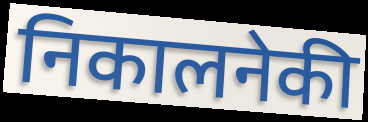
निकालनेकी